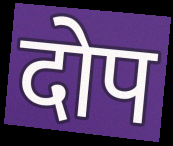
दोप